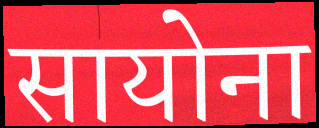
सायोना